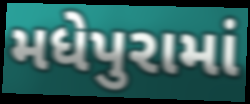
મધેપુરામાં